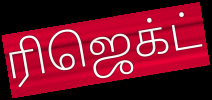
ரிஜெக்ட்